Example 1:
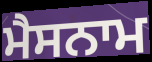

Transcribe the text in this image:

ਮੈਸਨਾਮ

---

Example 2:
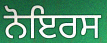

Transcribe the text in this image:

ਨੋਇਰਸ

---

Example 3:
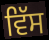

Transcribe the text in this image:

ਵਿੱਸ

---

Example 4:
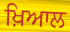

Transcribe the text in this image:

ਖ਼ਿਆਲ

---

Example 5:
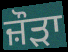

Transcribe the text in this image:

ਜ਼ੌੜਾ